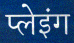
प्लेइंग